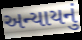
અન્યાયનું